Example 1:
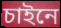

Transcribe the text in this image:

চাইনে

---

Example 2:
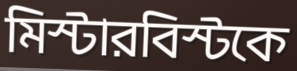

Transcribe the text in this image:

মিস্টারবিস্টকে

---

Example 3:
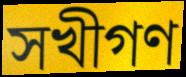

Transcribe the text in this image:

সখীগণ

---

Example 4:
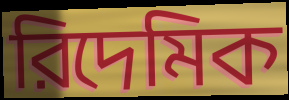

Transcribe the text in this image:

রিদেমিক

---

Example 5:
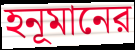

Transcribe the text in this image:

হনূমানের